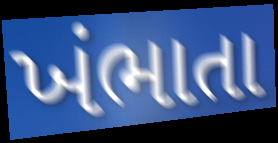
ખંભાતા